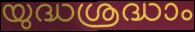
യുദ്ധശ്രദ്ധാം